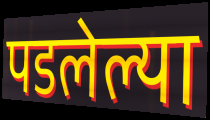
पडलेल्या